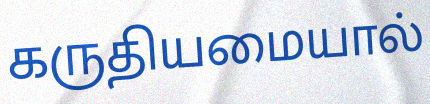
கருதியமையால்